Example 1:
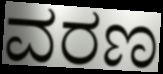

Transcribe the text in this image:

ವರಣ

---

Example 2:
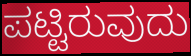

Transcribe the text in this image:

ಪಟ್ಟಿರುವುದು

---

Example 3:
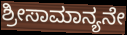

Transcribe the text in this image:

ಶ್ರೀಸಾಮಾನ್ಯನೇ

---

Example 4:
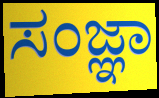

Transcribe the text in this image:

ಸಂಜ್ಞಾ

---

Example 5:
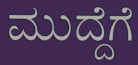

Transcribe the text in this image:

ಮುದ್ದೆಗೆ